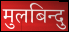
मुलबिन्दु